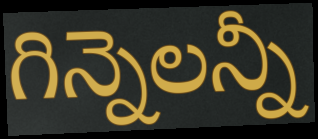
గిన్నెలన్నీ